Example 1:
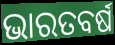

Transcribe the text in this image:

ଭାରତବର୍ଷ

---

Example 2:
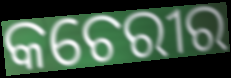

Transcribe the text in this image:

କଚେରୀର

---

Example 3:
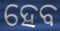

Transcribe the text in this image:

ହେବ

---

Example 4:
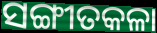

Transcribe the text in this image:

ସଙ୍ଗୀତକଳା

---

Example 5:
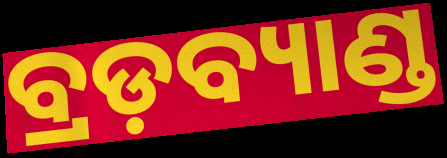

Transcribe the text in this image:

ବ୍ରଡ଼ବ୍ୟାଣ୍ଡ